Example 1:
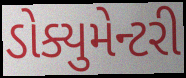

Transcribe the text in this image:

ડોક્યુમેન્ટરી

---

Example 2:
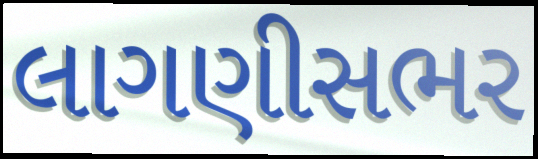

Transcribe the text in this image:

લાગણીસભર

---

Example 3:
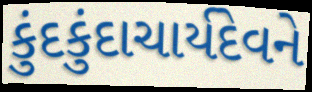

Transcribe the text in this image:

કુંદકુંદાચાર્યદેવને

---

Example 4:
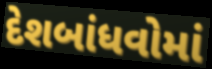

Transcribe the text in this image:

દેશબાંધવોમાં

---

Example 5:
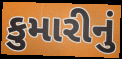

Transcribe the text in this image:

કુમારીનું